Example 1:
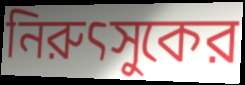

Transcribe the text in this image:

নিরুৎসুকের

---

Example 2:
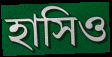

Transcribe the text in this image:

হাসিও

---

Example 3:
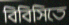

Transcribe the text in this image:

বিবিসিতে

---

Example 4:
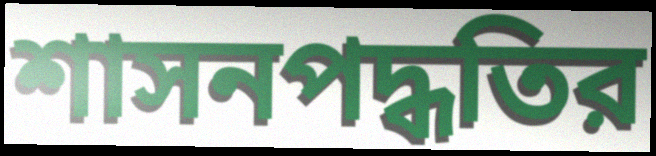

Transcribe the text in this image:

শাসনপদ্ধতির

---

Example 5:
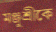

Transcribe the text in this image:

মঞ্জুশ্রীকে